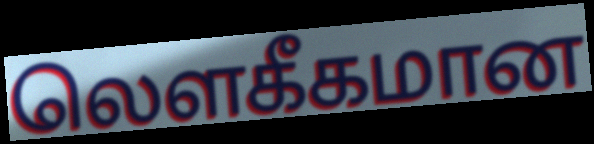
லெளகீகமான